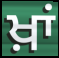
ਖ਼ਾਂ